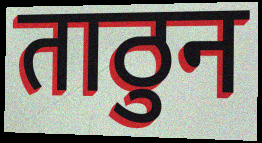
ताठुन